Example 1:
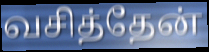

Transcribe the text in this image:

வசித்தேன்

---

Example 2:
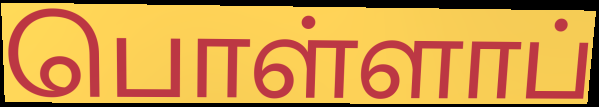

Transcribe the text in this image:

பொள்ளாப்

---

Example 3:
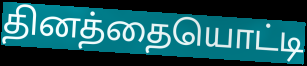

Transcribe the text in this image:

தினத்தையொட்டி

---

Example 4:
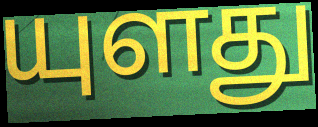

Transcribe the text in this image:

யுளது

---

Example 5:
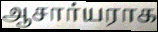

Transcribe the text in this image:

ஆசார்யராக